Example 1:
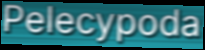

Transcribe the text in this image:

Pelecypoda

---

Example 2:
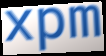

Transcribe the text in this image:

xpm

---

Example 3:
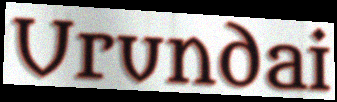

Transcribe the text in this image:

Urundai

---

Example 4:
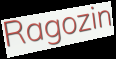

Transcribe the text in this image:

Ragozin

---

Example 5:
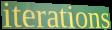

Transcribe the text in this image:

iterations